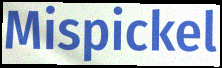
Mispickel